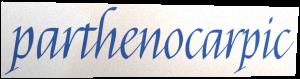
parthenocarpic